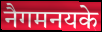
नैगमनयके